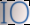
IO